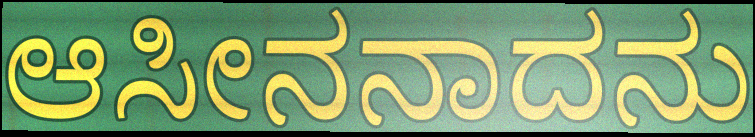
ಆಸೀನನಾದನು